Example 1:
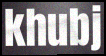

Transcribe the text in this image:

khubj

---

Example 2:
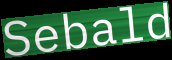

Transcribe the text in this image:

Sebald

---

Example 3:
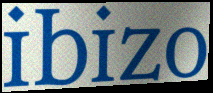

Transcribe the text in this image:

ibizo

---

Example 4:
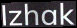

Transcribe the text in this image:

Izhak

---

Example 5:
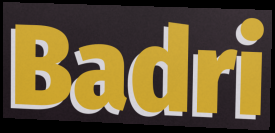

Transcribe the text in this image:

Badri